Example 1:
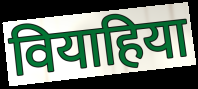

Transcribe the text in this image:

वियाहिया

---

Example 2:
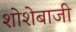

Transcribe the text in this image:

शोशेबाजी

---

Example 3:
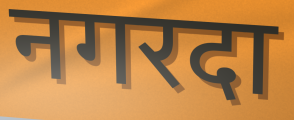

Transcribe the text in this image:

नगरदा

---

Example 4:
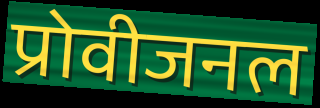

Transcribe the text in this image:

प्रोवीजनल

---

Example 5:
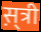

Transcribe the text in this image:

स़्त्री